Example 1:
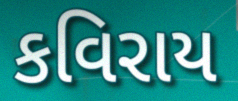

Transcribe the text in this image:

કવિરાય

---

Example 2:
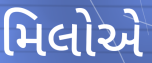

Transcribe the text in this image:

મિલોએ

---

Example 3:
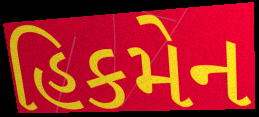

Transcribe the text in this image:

હિકમેન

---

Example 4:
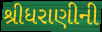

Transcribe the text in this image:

શ્રીધરાણીની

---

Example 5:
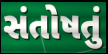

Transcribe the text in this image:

સંતોષતું